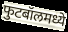
फुटबॉलमध्ये